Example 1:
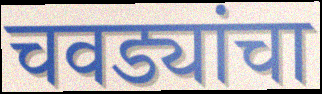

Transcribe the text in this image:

चवड्यांचा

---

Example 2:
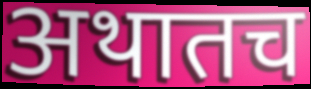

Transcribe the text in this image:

अथातच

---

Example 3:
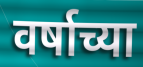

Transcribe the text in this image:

वर्षाच्या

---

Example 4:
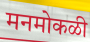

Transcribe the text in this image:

मनमोकळी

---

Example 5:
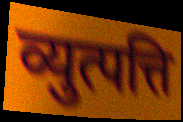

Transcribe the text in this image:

व्युत्पत्ति